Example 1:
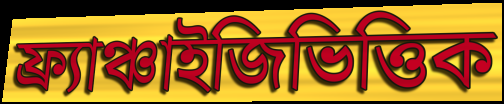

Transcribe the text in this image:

ফ্র্যাঞ্চাইজিভিত্তিক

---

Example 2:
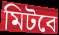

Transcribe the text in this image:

মিটবে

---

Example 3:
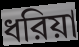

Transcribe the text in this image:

ধরিয়া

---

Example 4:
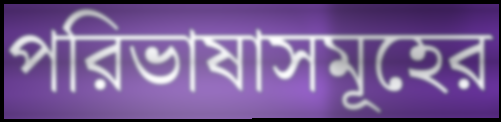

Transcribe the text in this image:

পরিভাষাসমূহের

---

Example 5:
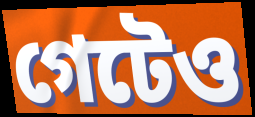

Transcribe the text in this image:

গেটেও